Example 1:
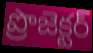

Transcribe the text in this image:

ప్రొజెక్టర్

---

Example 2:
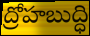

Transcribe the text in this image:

ద్రోహబుద్ధి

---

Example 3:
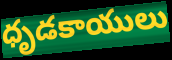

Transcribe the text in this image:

ధృడకాయులు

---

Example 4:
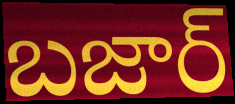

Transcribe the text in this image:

బజార్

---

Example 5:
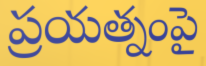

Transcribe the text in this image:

ప్రయత్నంపై